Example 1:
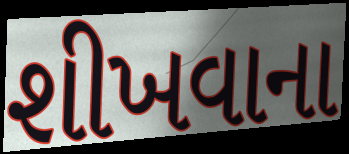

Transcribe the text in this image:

શીખવાના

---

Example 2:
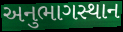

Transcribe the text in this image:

અનુભાગસ્થાન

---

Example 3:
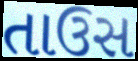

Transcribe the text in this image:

તાઉસ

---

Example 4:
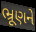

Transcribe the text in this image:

ભ્રૂણને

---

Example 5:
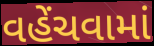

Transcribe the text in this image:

વહેંચવામાં